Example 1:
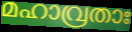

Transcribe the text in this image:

മഹാവ്രതാഃ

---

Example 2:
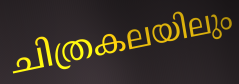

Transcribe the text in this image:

ചിത്രകലയിലും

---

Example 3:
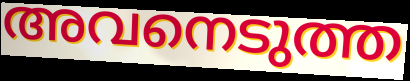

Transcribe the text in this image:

അവനെടുത്ത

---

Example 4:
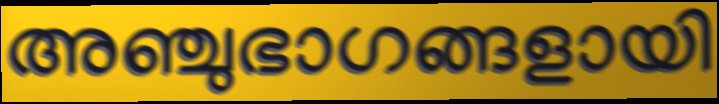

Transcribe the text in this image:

അഞ്ചുഭാഗങ്ങളായി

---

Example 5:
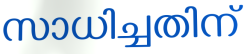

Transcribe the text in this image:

സാധിച്ചതിന്